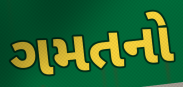
ગમતનો